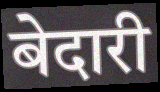
बेदारी